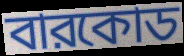
বারকোড